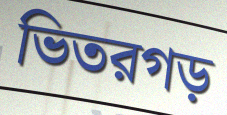
ভিতরগড়